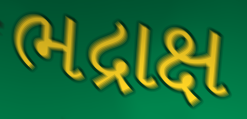
ભદ્રાક્ષ